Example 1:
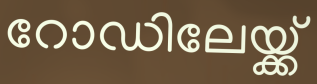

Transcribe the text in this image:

റോഡിലേയ്ക്ക്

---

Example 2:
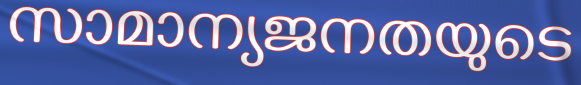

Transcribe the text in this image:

സാമാന്യജനതയുടെ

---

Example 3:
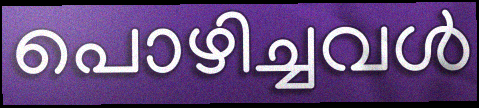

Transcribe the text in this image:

പൊഴിച്ചവൾ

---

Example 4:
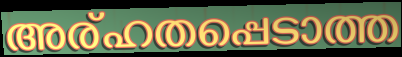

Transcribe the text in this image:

അര്ഹതപ്പെടാത്ത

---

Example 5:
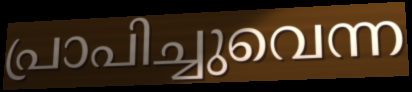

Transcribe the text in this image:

പ്രാപിച്ചുവെന്ന